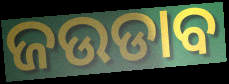
ଜଉଡାବ